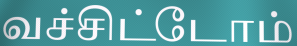
வச்சிட்டோம்